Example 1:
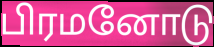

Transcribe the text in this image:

பிரமனோடு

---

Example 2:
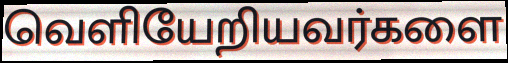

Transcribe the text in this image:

வெளியேறியவர்களை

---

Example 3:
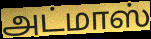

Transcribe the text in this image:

அட்மாஸ்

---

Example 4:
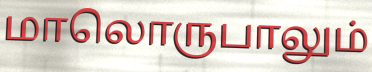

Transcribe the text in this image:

மாலொருபாலும்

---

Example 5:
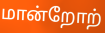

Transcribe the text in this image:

மான்றோற்